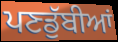
ਪਣਡੁੱਬੀਆਂ